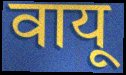
वायू